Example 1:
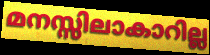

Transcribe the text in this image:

മനസ്സിലാകാറില്ല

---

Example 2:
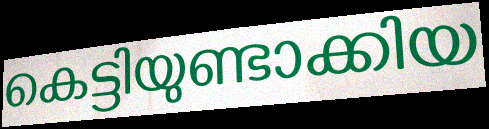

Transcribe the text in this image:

കെട്ടിയുണ്ടാക്കിയ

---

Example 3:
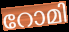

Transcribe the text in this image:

റോമി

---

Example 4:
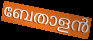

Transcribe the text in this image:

ബേതാളൻ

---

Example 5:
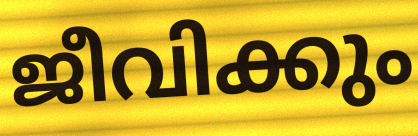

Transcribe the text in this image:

ജീവിക്കും